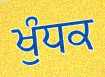
ਖੁੰਧਕ